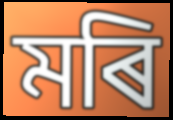
মৰি